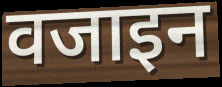
वजाइन